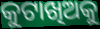
କୁଟାଖିଅକୁ